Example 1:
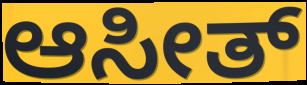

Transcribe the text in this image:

ಆಸೀತ್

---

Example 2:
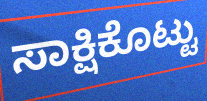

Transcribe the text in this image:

ಸಾಕ್ಷಿಕೊಟ್ಟು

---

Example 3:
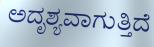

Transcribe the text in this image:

ಅದೃಶ್ಯವಾಗುತ್ತಿದೆ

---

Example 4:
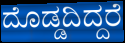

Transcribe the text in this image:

ದೊಡ್ಡದಿದ್ದರೆ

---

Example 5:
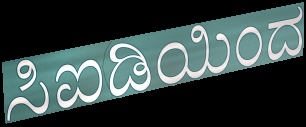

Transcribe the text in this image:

ಸಿಐಡಿಯಿಂದ